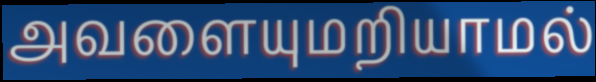
அவளையுமறியாமல்